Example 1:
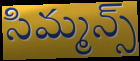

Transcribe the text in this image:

సిమ్మన్స్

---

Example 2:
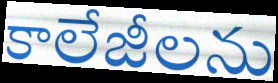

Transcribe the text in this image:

కాలేజీలను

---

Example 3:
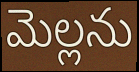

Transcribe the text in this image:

మెల్లను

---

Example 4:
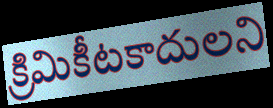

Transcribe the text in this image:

క్రిమికీటకాదులని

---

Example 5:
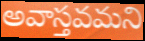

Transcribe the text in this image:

అవాస్తవమని